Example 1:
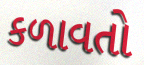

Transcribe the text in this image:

કળાવતો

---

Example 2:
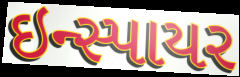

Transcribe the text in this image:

ઇન્સ્પાયર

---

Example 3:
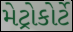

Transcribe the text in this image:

મેટ્રોકોર્ટે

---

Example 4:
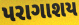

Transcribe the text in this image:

પરાગાશય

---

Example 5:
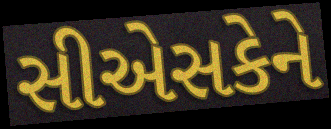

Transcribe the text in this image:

સીએસકેને